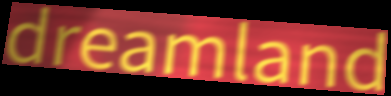
dreamland